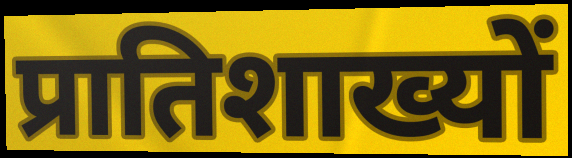
प्रातिशाख्यों